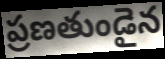
ప్రణతుండైన